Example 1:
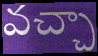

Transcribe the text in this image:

వచ్చా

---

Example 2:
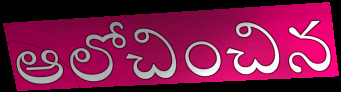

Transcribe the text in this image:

ఆలోచించిన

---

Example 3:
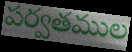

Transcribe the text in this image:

పర్వతముల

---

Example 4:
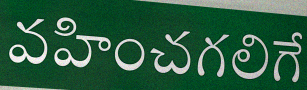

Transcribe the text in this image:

వహించగలిగే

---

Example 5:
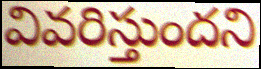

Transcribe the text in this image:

వివరిస్తుందని